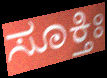
ಸೂಕ್ತಿಃ